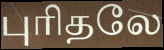
புரிதலே